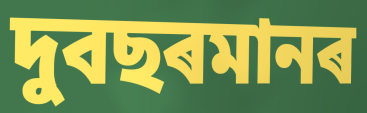
দুবছৰমানৰ